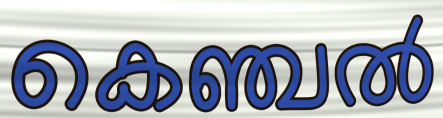
കെഞ്ചൽ